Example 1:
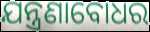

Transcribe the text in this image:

ଯନ୍ତ୍ରଣାବୋଧର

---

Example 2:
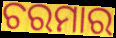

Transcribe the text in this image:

ଚରମାର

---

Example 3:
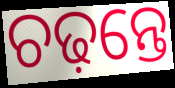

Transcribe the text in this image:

ଚଢ଼ନ୍ତେ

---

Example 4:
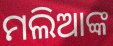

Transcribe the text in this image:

ମଲିଆଙ୍କ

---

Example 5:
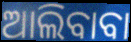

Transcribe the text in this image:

ଆଲିବାବା